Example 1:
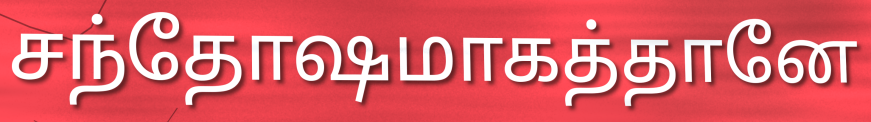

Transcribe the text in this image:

சந்தோஷமாகத்தானே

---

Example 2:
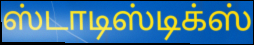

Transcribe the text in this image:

ஸ்டாடிஸ்டிக்ஸ்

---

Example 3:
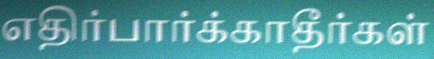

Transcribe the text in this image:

எதிர்பார்க்காதீர்கள்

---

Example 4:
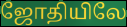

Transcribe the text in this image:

ஜோதியிலே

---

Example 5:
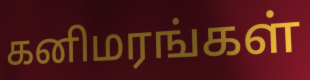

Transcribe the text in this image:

கனிமரங்கள்